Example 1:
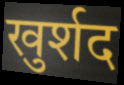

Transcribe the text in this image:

खुर्शद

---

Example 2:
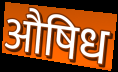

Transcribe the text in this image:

औषिध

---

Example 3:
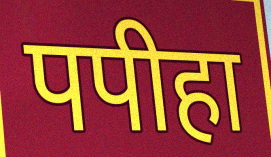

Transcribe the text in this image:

पपीहा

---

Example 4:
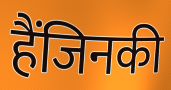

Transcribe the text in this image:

हैंजिनकी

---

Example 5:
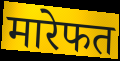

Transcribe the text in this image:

मारेफत